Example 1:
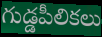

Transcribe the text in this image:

గుడ్డపీలికలు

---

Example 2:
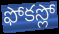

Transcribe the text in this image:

ఫోకస్లో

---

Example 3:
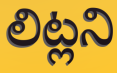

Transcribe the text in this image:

లిట్లని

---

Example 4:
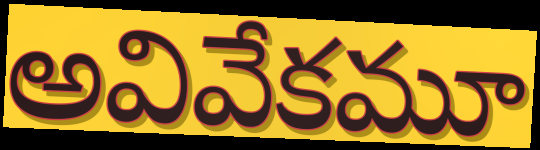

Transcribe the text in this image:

అవివేకమూ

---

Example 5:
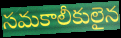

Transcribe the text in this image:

సమకాలీకులైన